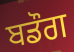
ਬਡੌਗ